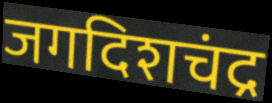
जगदिशचंद्र